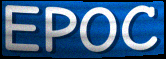
EPOC